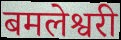
बमलेश्वरी